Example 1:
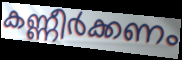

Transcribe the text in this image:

കണ്ണീർക്കണം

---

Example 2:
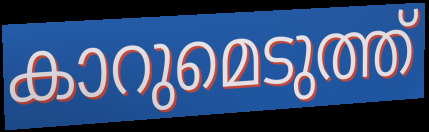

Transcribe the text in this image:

കാറുമെടുത്ത്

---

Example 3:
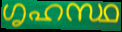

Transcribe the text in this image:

ഗൃഹസ്ഥ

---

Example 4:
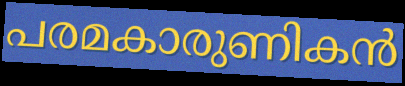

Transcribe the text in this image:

പരമകാരുണികൻ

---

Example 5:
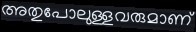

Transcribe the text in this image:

അതുപോലുള്ളവരുമാണ്